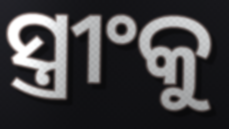
ସ୍ତ୍ରୀଂକୁ